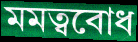
মমত্ববোধ